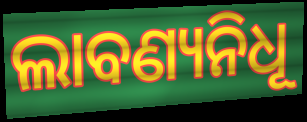
ଲାବଣ୍ୟନିଧୂ